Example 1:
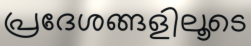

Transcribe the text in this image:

പ്രദേശങ്ങളിലൂടെ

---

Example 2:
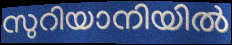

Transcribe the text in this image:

സുറിയാനിയിൽ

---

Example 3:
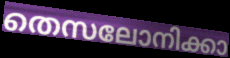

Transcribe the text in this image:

തെസലോനിക്കാ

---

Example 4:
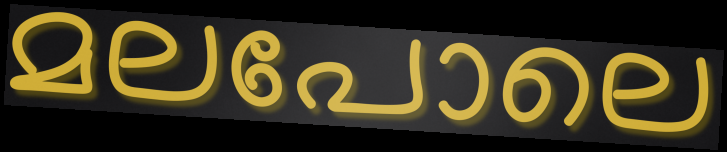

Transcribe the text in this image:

മലപോലെ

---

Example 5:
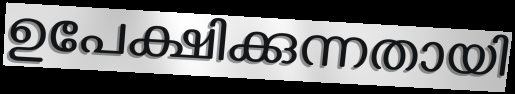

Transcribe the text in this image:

ഉപേക്ഷിക്കുന്നതായി